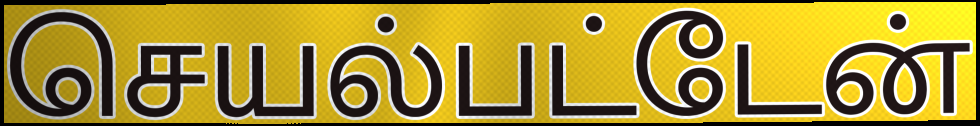
செயல்பட்டேன்